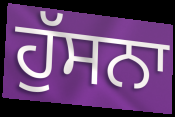
ਹੁੱਸਨਾ